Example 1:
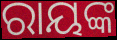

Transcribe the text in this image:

ରାୟଙ୍କ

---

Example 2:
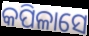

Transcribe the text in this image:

କପିଳାସେ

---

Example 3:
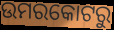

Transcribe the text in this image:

ଉମରକୋଟରୁ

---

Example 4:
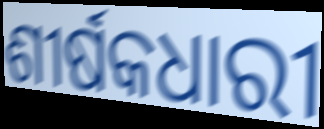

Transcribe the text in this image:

ଶୀର୍ଷକଧାରୀ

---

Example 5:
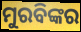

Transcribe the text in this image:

ମୁରବିଙ୍କର